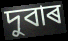
দুবাৰ